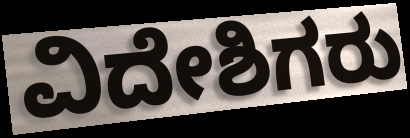
ವಿದೇಶಿಗರು